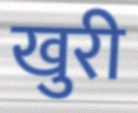
खुरी